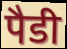
पैडी